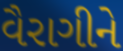
વૈરાગીને